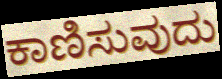
ಕಾಣಿಸುವುದು